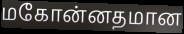
மகோன்னதமான